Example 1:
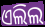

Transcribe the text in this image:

ଏଲିଲ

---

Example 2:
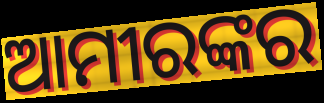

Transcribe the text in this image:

ଆମୀରଙ୍କର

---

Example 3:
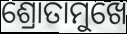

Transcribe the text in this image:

ଶ୍ରୋତାମୁଖେ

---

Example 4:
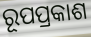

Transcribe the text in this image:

ରୂପପ୍ରକାଶ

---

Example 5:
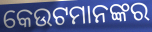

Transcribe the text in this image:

କେଉଟମାନଙ୍କର